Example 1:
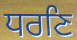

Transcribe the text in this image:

ਧਰਣਿ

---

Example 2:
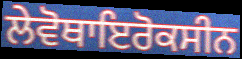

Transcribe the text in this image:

ਲੇਵੋਥਾਇਰੋਕਸੀਨ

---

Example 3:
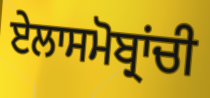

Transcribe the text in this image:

ਏਲਾਸਮੋਬ੍ਰਾਂਚੀ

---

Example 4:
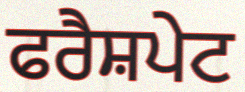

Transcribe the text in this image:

ਫਰੈਸ਼ਪੇਟ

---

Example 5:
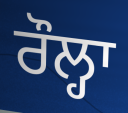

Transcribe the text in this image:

ਰੌਲ੍ਹਾ